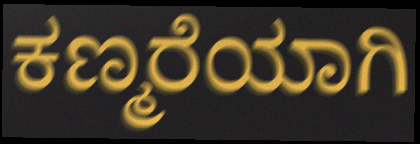
ಕಣ್ಮರೆಯಾಗಿ